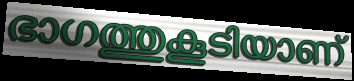
ഭാഗത്തുകൂടിയാണ്